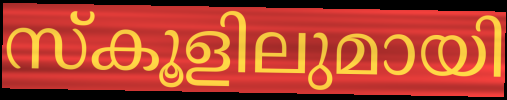
സ്കൂളിലുമായി